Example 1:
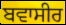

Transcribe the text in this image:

ਬਵਾਸੀਰ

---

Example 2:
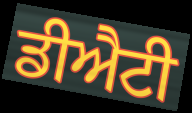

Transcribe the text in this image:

ਡੀਐਟੀ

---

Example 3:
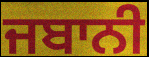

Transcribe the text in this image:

ਜਬਾਨੀ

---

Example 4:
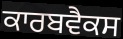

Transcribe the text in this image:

ਕਾਰਬਵੈਕਸ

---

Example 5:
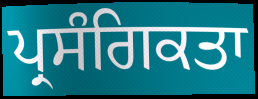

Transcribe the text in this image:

ਪ੍ਰਸੰਗਿਕਤਾ